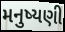
મનુષ્યણી